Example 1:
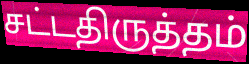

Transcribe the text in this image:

சட்டதிருத்தம்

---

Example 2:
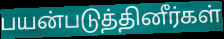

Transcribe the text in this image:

பயன்படுத்தினீர்கள்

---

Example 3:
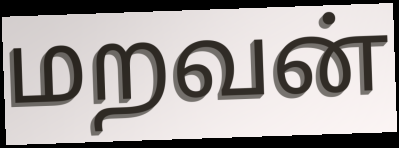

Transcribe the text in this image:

மறவன்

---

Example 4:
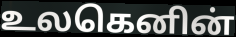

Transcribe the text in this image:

உலகெனின்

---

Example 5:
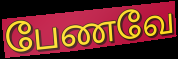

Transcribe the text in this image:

பேணவே